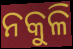
ନକୁଳି